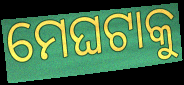
ମେଘଟାକୁ